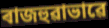
ৰাজহুৱাভাৱে